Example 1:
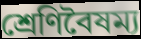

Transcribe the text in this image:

শ্রেণিবৈষম্য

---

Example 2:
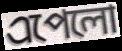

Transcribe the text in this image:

এপেলো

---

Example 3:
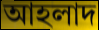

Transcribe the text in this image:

আহলাদ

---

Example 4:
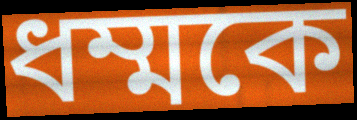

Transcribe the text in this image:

ধম্মকে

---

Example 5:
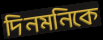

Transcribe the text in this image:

দিনমনিকে